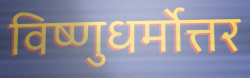
विष्णुधर्मोत्तर